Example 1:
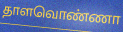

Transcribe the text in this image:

தாளவொண்ணா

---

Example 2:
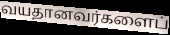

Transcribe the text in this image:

வயதானவர்களைப்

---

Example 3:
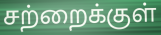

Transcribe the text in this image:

சற்றைக்குள்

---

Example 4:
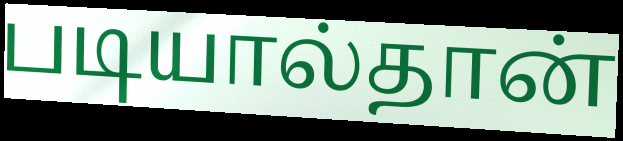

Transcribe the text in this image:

படியால்தான்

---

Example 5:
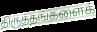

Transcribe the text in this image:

திருத்தங்களைக்